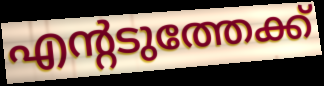
എന്റടുത്തേക്ക്